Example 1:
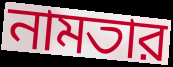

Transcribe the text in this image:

নামতার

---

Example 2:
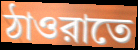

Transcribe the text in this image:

ঠাওরাতে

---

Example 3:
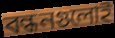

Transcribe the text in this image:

বন্ধনগুলোই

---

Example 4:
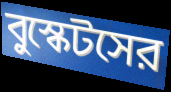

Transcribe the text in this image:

বুস্কেটসের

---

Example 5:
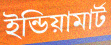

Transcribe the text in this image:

ইন্ডিয়ামার্ট